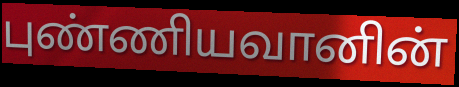
புண்ணியவானின்